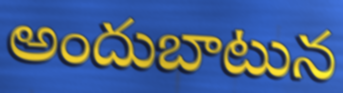
అందుబాటున